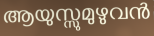
ആയുസ്സുമുഴുവൻ